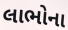
લાભોના